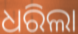
ଧରିଲା